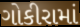
ગોકીરામાં